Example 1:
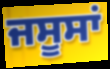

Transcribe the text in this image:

ਜਸੂਸਾਂ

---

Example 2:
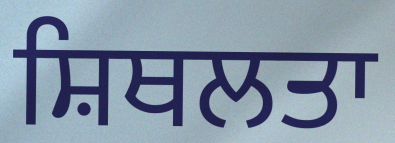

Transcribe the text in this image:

ਸ਼ਿਥਲਤਾ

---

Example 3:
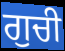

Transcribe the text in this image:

ਗੁਚੀ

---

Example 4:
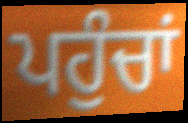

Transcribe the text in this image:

ਪਹੁੰਚਾਂ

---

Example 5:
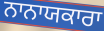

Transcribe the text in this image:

ਨਾਨਾਯਕਾਰਾ